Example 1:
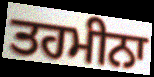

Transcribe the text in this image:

ਤਹਮੀਨਾ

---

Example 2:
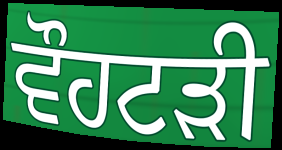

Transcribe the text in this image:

ਵੌਹਟੜੀ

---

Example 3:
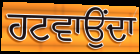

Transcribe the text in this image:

ਹਟਵਾਉਂਦਾ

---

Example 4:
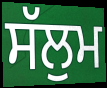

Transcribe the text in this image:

ਸੱਲੁਮ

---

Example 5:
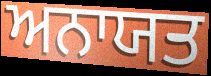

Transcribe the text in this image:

ਅਨਾਯਤ